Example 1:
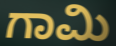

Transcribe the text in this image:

ಗಾಮಿ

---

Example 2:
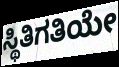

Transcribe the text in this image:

ಸ್ಥಿತಿಗತಿಯೇ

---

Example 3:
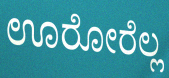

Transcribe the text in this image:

ಊರೋರೆಲ್ಲ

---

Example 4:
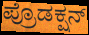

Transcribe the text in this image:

ಪ್ರೊಡಕ್ಷನ್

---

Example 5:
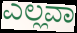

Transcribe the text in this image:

ಎಲ್ಲವಾ